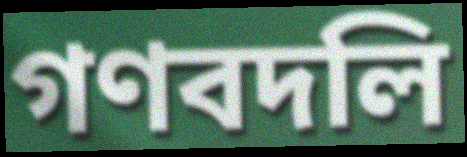
গণবদলি